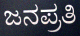
ಜನಪ್ರತಿ